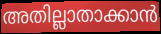
അതില്ലാതാക്കാൻ